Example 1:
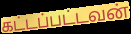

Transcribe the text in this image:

கட்டப்பட்டவன்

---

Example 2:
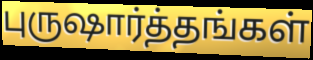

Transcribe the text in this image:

புருஷார்த்தங்கள்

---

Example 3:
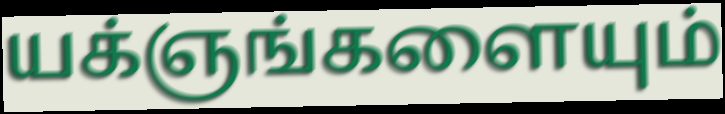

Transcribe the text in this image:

யக்ஞங்களையும்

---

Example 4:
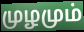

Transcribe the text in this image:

முழமும்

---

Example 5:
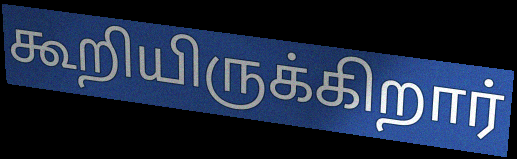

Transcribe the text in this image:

கூறியிருக்கிறார்